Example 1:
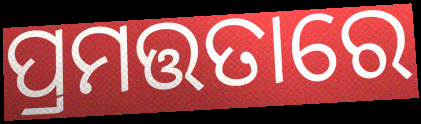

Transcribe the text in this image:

ପ୍ରମତ୍ତତାରେ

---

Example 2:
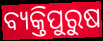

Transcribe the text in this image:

ବ୍ୟକ୍ତିପୁରୁଷ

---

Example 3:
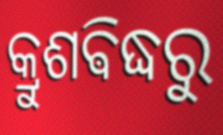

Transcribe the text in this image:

କ୍ରୁଶଵିଦ୍ଧରୁ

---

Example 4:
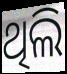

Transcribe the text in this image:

ଥିଲି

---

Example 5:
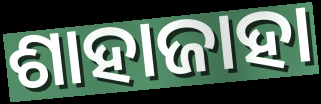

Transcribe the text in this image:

ଶାହାଜାହା